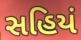
સહિયં